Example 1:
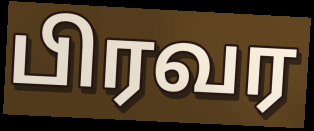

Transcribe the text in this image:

பிரவர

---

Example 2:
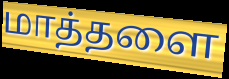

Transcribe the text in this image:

மாத்தளை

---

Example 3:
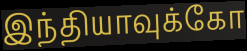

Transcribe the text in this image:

இந்தியாவுக்கோ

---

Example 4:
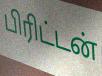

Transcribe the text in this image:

பிரிட்டன்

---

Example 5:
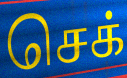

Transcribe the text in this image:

செக்